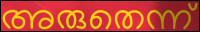
അരുതെന്ന്